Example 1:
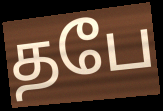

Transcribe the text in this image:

தபே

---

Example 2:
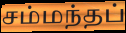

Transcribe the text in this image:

சம்மந்தப்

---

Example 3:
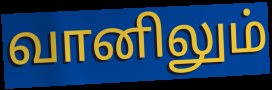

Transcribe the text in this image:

வானிலும்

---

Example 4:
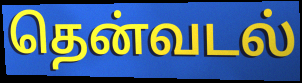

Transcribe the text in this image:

தென்வடல்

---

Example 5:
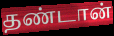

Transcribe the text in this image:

தண்டான்